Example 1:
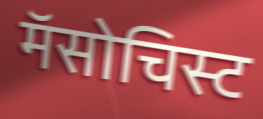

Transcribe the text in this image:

मॅसोचिस्ट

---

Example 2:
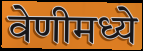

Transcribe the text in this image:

वेणीमध्ये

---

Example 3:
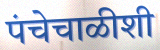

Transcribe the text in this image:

पंचेचाळीशी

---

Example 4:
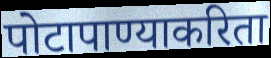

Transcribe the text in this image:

पोटापाण्याकरिता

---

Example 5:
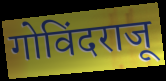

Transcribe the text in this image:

गोविंदराजू